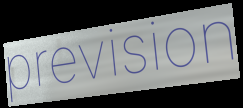
prevision